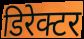
डिरेक्टर